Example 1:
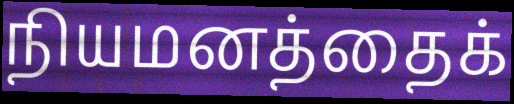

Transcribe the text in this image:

நியமனத்தைக்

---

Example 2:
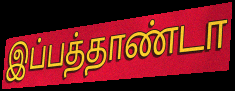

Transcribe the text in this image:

இப்பத்தாண்டா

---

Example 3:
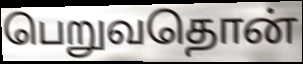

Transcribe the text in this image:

பெறுவதொன்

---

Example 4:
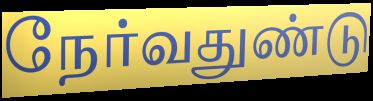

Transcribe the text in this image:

நேர்வதுண்டு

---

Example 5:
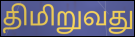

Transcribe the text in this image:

திமிறுவது